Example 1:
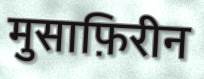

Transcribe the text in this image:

मुसाफ़िरीन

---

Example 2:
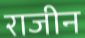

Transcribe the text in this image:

राजीन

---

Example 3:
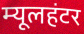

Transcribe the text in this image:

म्यूलहंटर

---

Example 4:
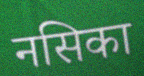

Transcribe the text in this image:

नसिका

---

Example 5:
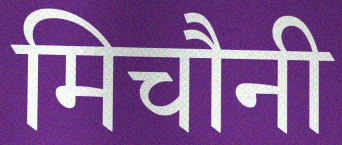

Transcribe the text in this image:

मिचौनी